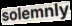
solemnly